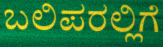
ಬಲಿಪರಲ್ಲಿಗೆ